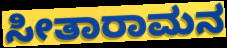
ಸೀತಾರಾಮನ